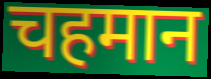
चहमान